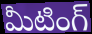
మీటింగ్